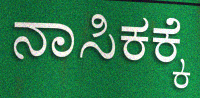
ನಾಸಿಕಕ್ಕೆ